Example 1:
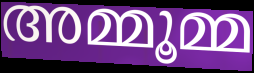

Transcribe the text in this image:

അമ്മൂമ്മ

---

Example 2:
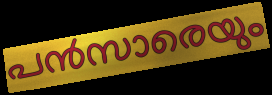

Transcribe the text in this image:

പൻസാരെയും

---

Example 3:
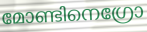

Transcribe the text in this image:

മോണ്ടിനെഗ്രോ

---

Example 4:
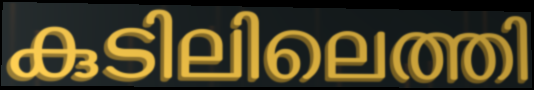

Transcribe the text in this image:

കുടിലിലെത്തി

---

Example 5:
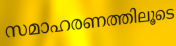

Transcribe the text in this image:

സമാഹരണത്തിലൂടെ